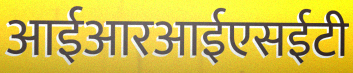
आईआरआईएसईटी